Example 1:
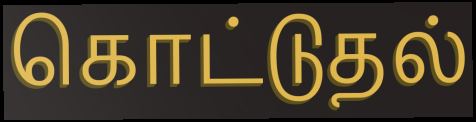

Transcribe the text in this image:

கொட்டுதல்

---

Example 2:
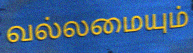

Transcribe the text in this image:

வல்லமையும்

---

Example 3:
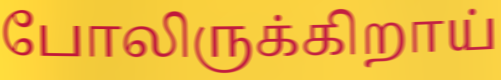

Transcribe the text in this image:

போலிருக்கிறாய்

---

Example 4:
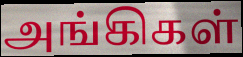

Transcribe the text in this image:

அங்கிகள்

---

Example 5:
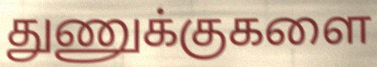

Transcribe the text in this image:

துணுக்குகளை